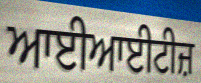
ਆਈਆਈਟੀਜ਼